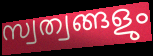
സ്വത്വങ്ങളും